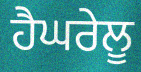
ਹੈਘਰੇਲੂ